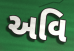
અવિ